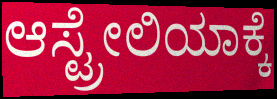
ಆಸ್ಟ್ರೇಲಿಯಾಕ್ಕೆ